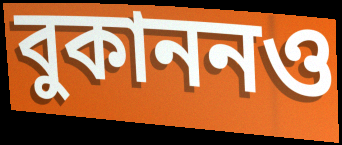
বুকাননও